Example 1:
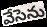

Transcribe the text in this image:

వేసెను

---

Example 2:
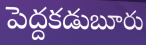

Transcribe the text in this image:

పెద్దకడుబూరు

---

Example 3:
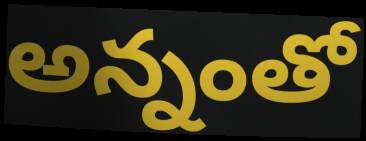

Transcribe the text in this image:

అన్నంతో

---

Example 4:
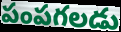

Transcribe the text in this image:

పంపగలడు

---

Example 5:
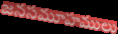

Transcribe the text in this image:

జనసమూహములు